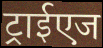
ट्राईएज